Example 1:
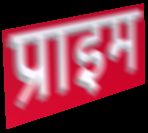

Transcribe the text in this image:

प्राइम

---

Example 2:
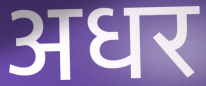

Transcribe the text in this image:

अधर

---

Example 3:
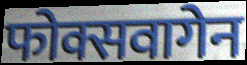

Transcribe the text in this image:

फोक्सवागेन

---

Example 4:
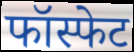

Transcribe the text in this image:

फॉस्फेट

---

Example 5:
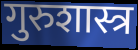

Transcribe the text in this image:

गुरुशास्त्र